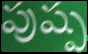
పుష్ప